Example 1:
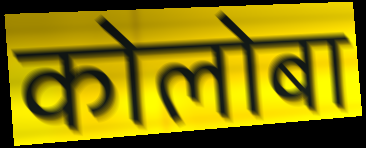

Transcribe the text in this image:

कोलोबा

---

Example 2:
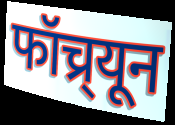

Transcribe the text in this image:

फॉच्र्यून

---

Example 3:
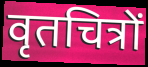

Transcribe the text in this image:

वृतचित्रों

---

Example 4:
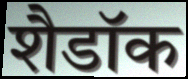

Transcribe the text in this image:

शैडॉक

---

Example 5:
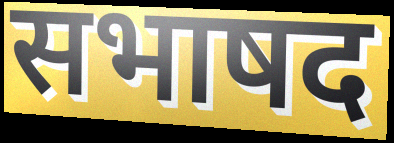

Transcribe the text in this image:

सभाषद